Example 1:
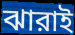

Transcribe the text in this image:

ঝারাই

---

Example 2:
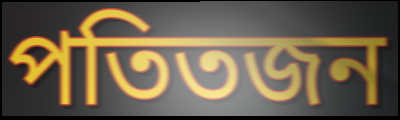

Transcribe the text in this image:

পতিতজন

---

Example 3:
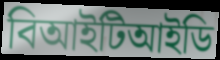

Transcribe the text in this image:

বিআইটিআইডি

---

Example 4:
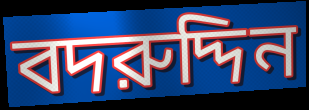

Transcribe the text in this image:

বদরুদ্দিন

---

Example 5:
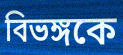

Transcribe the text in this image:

বিভঙ্গকে